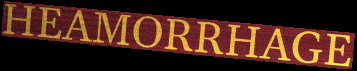
HEAMORRHAGE